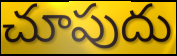
చూపుదు